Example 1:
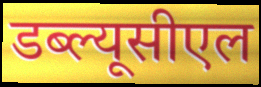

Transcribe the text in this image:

डब्ल्यूसीएल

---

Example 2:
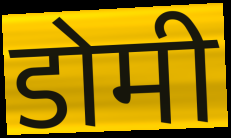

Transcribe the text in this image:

डोमी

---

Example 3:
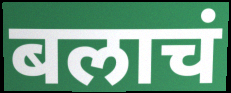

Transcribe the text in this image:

बलाचं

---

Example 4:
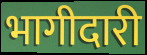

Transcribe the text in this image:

भागीदारी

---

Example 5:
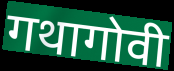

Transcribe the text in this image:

गथागोवी